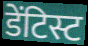
डेंटिस्ट